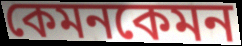
কেমনকেমন